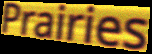
Prairies